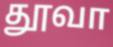
தூவா